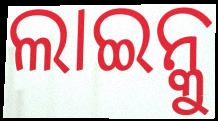
ଲାଇନ୍କୁ